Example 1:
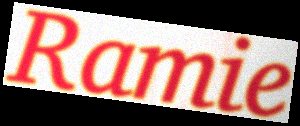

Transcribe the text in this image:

Ramie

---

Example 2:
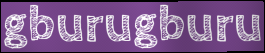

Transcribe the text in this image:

gburugburu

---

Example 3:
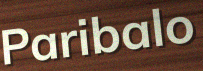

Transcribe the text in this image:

Paribalo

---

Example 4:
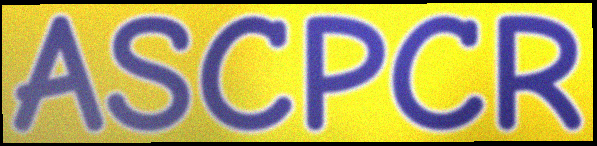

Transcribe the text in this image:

ASCPCR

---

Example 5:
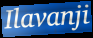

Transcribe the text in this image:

Ilavanji